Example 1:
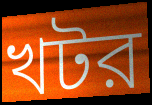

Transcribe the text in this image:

খটর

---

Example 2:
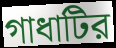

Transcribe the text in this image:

গাধাটির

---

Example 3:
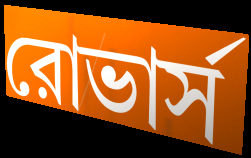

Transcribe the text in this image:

রোভার্স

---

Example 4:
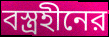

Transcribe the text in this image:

বস্ত্রহীনের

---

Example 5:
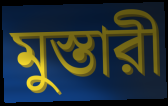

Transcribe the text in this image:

মুস্তারী